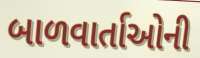
બાળવાર્તાઓની